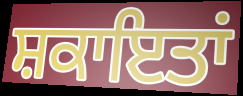
ਸ਼ਕਾਇਤਾਂ